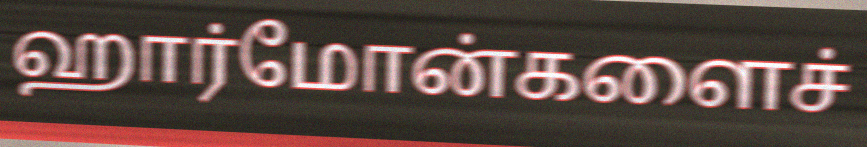
ஹார்மோன்களைச்